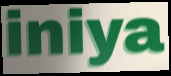
iniya